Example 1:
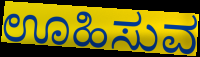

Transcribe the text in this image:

ಊಹಿಸುವ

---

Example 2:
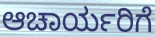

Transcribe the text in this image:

ಆಚಾರ್ಯರಿಗೆ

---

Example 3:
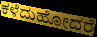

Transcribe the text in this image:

ಕಳೆದುಹೋದರೆ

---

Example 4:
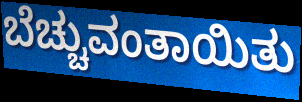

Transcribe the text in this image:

ಬೆಚ್ಚುವಂತಾಯಿತು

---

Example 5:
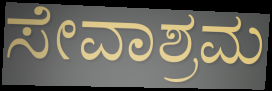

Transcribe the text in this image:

ಸೇವಾಶ್ರಮ